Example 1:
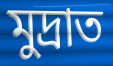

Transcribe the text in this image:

মুদ্ৰাত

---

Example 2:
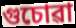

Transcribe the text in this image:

গুচোৱা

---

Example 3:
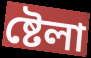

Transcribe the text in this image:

ষ্টেলা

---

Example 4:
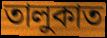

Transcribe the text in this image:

তালুকাত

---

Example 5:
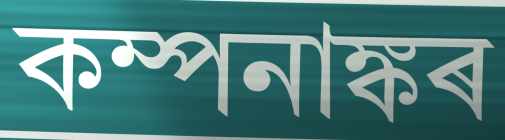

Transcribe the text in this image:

কম্পনাঙ্কৰ